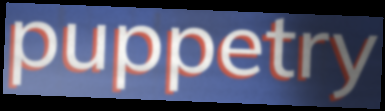
puppetry